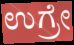
ಉಗ್ರೇ